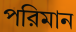
পরিমান